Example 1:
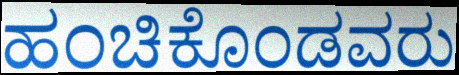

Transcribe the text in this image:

ಹಂಚಿಕೊಂಡವರು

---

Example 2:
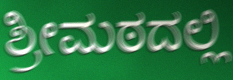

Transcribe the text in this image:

ಶ್ರೀಮಠದಲ್ಲಿ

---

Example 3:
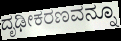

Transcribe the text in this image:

ದೃಢೀಕರಣವನ್ನೂ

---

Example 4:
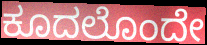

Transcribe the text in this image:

ಕೂದಲೊಂದೇ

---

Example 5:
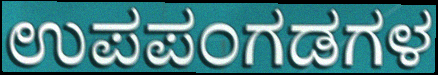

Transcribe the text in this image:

ಉಪಪಂಗಡಗಳ